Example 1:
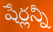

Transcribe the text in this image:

షేర్లన్నీ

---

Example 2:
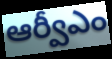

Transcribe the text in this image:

ఆర్వీఎం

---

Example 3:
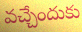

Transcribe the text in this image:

వచ్చేందుకు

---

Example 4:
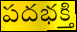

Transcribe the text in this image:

పదభక్తి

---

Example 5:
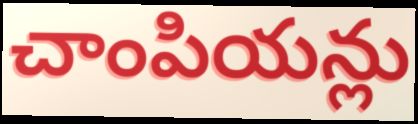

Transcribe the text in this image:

చాంపియన్లు